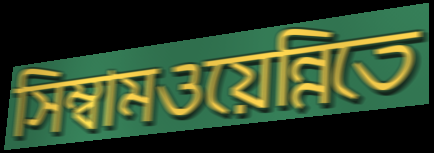
সিম্বামওয়েন্নিতে